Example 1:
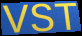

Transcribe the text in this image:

VST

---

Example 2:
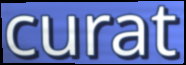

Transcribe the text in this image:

curat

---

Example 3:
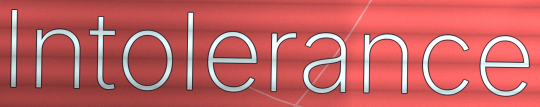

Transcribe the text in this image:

Intolerance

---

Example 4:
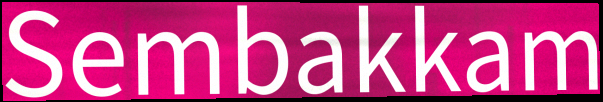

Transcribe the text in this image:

Sembakkam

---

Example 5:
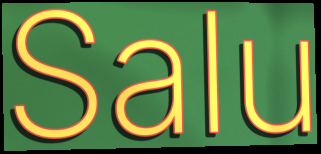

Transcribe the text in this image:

Salu